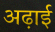
अढ़ाई